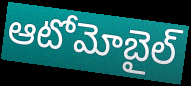
ఆటోమోబైల్